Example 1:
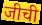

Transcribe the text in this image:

जीची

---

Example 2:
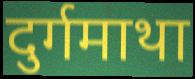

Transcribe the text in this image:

दुर्गमाथा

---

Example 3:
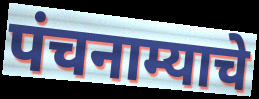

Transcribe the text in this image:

पंचनाम्याचे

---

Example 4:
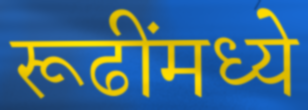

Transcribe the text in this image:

रूढींमध्ये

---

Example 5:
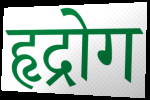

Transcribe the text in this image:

हृद्रोग